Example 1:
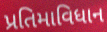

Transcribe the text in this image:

પ્રતિમાવિધાન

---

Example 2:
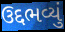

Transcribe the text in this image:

ઉદ્દભવ્યું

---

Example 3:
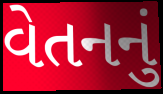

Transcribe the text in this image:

વેતનનું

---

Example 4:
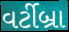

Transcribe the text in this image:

વર્ટીબ્રા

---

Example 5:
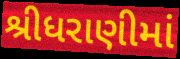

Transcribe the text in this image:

શ્રીધરાણીમાં